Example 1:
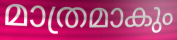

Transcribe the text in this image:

മാത്രമാകും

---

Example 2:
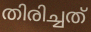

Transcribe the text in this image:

തിരിച്ചത്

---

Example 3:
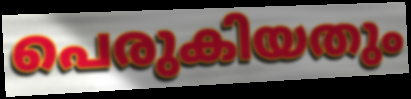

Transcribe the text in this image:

പെരുകിയതും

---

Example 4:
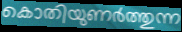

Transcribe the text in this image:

കൊതിയുണർത്തുന്ന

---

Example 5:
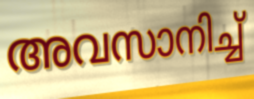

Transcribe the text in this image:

അവസാനിച്ച്